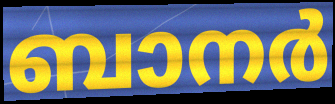
ബാനർ